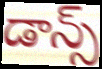
డాన్స్